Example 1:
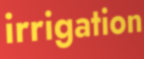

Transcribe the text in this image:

irrigation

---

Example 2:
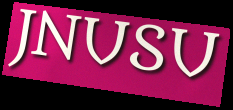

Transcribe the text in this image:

JNUSU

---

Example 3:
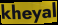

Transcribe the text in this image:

kheyal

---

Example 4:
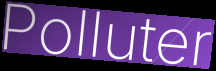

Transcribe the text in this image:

Polluter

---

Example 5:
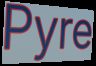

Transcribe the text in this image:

Pyre